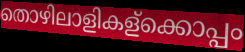
തൊഴിലാളികള്ക്കൊപ്പം